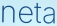
neta